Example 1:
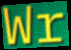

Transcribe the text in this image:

Wr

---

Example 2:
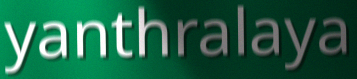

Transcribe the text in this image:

yanthralaya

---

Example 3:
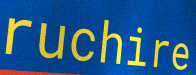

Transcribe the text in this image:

ruchire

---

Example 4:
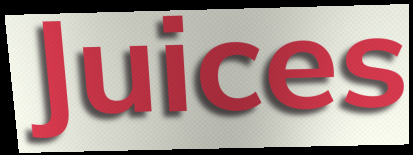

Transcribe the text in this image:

Juices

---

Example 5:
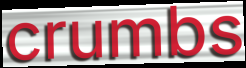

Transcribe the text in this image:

crumbs